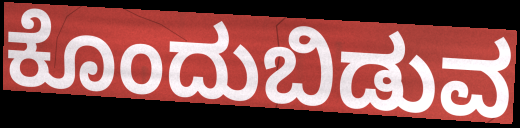
ಕೊಂದುಬಿಡುವ